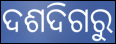
ଦଶଦିଗରୁ